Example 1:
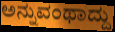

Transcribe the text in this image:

ಅನ್ನುವಂಥಾದ್ದು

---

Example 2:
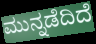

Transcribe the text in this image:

ಮುನ್ನಡೆದಿದೆ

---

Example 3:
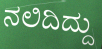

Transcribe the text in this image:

ನಲಿದಿದ್ದು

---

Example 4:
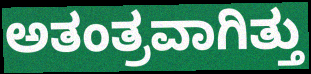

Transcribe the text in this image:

ಅತಂತ್ರವಾಗಿತ್ತು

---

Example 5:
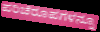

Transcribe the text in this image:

ಪರಿಚೆರೂಪಗಳನ್ನೂ